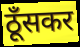
ठूँसकर